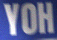
YOH